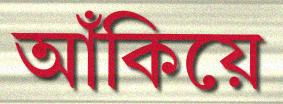
আঁকিয়ে